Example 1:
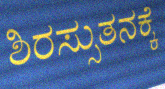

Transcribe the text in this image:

ಶಿರಸ್ಸುತನಕ್ಕೆ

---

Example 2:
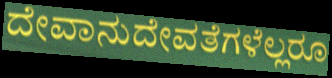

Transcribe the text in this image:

ದೇವಾನುದೇವತೆಗಳೆಲ್ಲರೂ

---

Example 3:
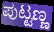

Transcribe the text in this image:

ಪುಟ್ಟಣ್ಣ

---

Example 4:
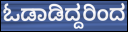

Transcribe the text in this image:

ಓಡಾಡಿದ್ದರಿಂದ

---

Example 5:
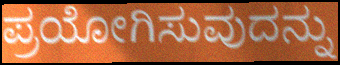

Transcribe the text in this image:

ಪ್ರಯೋಗಿಸುವುದನ್ನು